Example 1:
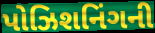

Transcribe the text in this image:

પોઝિશનિંગની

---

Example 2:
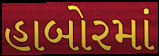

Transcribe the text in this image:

હાબોરમાં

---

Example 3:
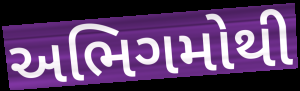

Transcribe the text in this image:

અભિગમોથી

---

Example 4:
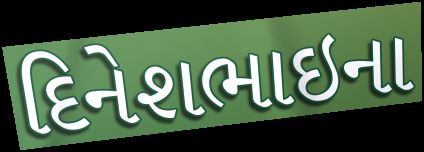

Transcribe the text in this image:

દિનેશભાઇના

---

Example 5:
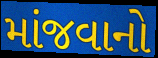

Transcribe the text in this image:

માંજવાનો